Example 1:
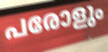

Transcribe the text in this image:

പരോളും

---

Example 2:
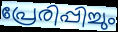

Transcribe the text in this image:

പ്രേരിപ്പിച്ചും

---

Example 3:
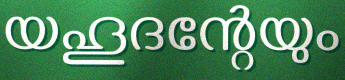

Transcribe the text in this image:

യഹൂദന്റേയും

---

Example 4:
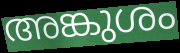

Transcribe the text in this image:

അങ്കുശം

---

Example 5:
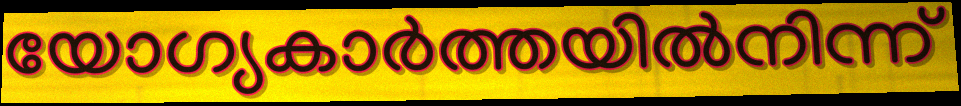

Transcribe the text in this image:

യോഗ്യകാർത്തയിൽനിന്ന്